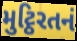
મુટ્ઠિરતનં